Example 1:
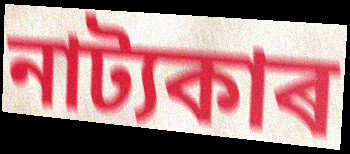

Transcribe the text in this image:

নাট্যকাৰ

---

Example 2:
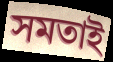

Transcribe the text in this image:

সমতাই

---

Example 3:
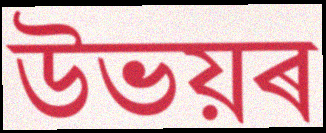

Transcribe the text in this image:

উভয়ৰ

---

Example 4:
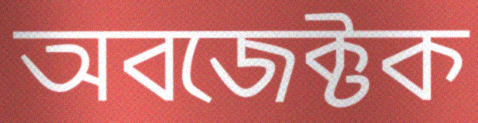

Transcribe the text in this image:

অবজেক্টক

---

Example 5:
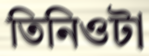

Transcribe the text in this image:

তিনিওটা